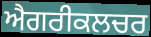
ਐਗਰੀਕਲਚਰ